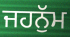
ਜਹਨੁੱਮ